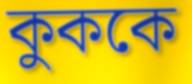
কুককে